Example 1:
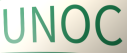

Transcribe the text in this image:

UNOC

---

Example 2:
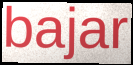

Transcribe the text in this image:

bajar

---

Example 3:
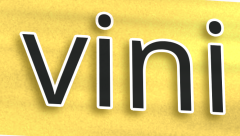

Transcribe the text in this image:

vini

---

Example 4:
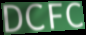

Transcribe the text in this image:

DCFC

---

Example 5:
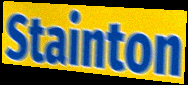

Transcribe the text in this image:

Stainton